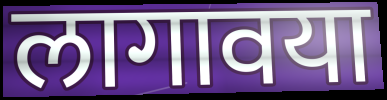
लागावया